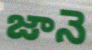
జానె